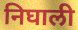
निघाली